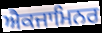
ਐਕਜਾਮਿਨਰ